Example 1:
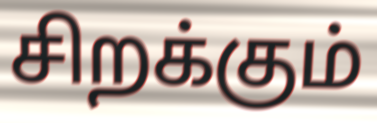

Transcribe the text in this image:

சிறக்கும்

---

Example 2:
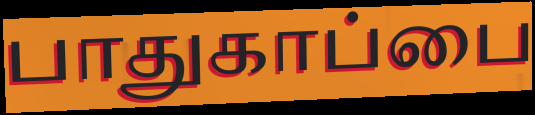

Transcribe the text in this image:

பாதுகாப்பை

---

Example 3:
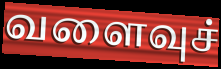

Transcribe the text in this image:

வளைவுச்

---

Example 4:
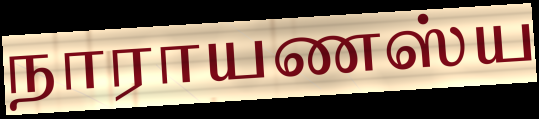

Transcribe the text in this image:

நாராயணஸ்ய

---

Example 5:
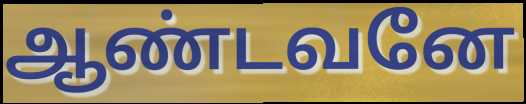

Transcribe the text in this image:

ஆண்டவனே